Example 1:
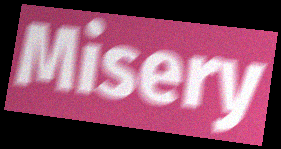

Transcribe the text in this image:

Misery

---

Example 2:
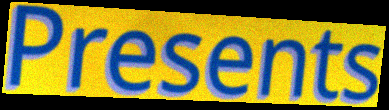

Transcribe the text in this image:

Presents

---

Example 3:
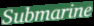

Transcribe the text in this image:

Submarine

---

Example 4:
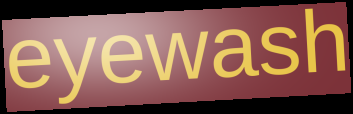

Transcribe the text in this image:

eyewash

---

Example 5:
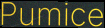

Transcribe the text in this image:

Pumice